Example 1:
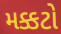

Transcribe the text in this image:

મક્કટો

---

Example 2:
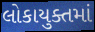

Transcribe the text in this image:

લોકાયુક્તમાં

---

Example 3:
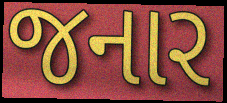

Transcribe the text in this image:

જનાર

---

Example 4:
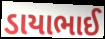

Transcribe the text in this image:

ડાયાભાઈ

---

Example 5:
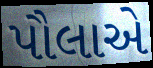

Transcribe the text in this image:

પૌલાએ